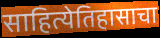
साहित्येतिहासाचा